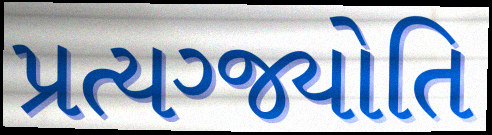
પ્રત્યગ્જ્યોતિ